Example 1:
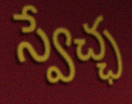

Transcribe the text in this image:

స్వేచ్ఛ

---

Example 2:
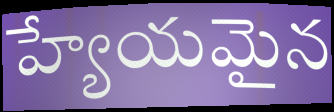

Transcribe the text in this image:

హ్యేయమైన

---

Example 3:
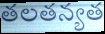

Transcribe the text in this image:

తలతన్యత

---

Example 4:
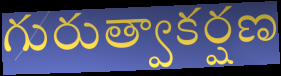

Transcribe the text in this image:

గురుత్వాకర్షణ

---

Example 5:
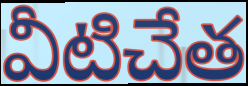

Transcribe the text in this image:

వీటిచేత